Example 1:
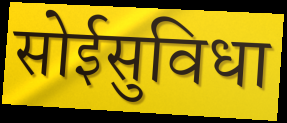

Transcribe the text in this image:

सोईसुविधा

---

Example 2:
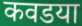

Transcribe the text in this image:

कवडया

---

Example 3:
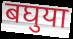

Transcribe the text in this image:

बघुया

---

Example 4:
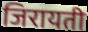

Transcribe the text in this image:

जिरायती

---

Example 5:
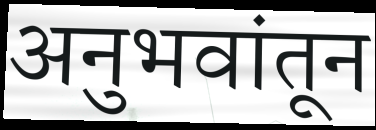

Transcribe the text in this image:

अनुभवांतून